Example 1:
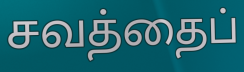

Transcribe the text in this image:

சவத்தைப்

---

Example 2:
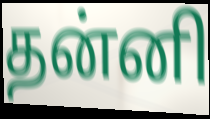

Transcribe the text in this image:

தன்னி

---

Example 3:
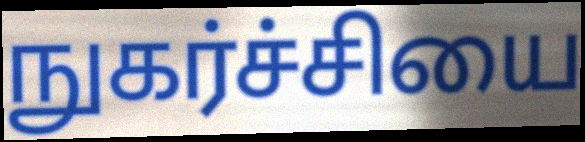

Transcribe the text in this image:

நுகர்ச்சியை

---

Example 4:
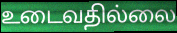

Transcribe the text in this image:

உடைவதில்லை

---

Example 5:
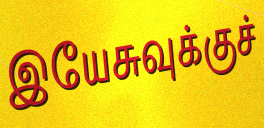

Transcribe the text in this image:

இயேசுவுக்குச்